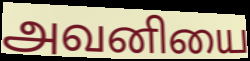
அவனியை